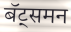
बॅट्समन